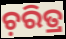
ଚ଼ରିତ୍ର